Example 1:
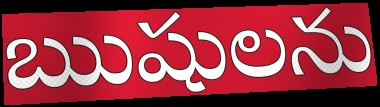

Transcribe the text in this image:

ఋషులను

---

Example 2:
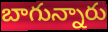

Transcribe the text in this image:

బాగున్నారు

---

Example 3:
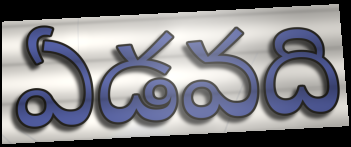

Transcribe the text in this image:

ఏడవది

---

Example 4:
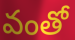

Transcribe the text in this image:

వంతో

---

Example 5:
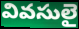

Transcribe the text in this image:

వివసులై